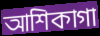
আশিকাগা